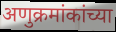
अणुक्रमांकांच्या